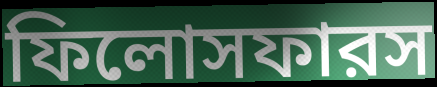
ফিলোসফারস